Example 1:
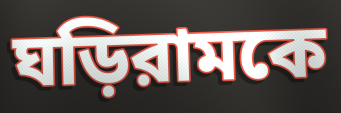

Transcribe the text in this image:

ঘড়িরামকে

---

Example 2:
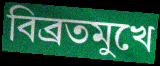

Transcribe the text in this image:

বিব্রতমুখে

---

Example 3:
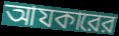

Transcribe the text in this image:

আযকারের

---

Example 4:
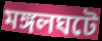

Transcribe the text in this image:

মঙ্গলঘটে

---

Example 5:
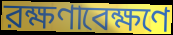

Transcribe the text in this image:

রক্ষণাবেক্ষণে